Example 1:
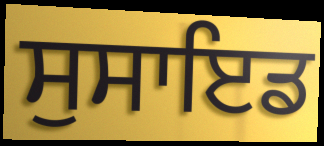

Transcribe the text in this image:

ਸੁਸਾਇਡ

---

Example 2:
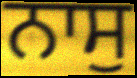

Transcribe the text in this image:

ਨਾਸੁ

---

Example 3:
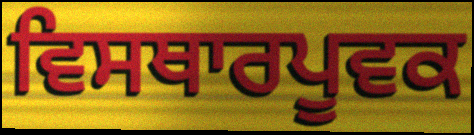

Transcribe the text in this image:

ਵਿਸਥਾਰਪੂਵਕ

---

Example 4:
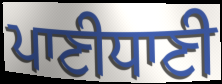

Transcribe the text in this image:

ਪਾਣੀਧਾਣੀ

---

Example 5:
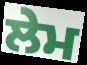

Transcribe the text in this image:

ਲੇਮ